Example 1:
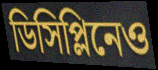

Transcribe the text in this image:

ডিসিপ্লিনেও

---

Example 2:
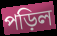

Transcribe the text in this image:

পড়িল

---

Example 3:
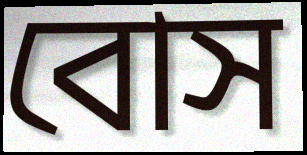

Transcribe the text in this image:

বোস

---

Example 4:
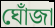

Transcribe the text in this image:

ঘোঁজা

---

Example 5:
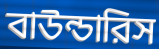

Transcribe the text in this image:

বাউন্ডারিস